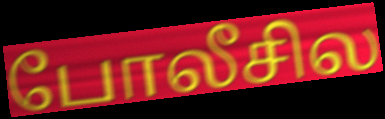
போலீசில